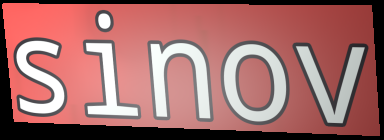
sinov